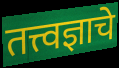
तत्त्वज्ञाचे